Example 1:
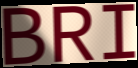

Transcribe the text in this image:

BRI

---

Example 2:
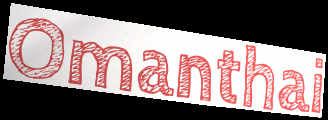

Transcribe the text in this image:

Omanthai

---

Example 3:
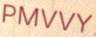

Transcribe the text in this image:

PMVVY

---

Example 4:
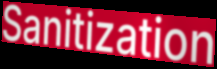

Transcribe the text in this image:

Sanitization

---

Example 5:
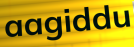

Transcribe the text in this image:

aagiddu